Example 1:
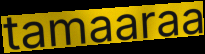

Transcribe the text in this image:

tamaaraa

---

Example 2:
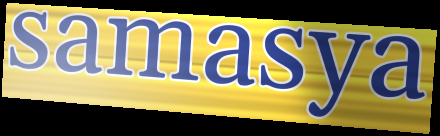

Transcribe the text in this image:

samasya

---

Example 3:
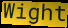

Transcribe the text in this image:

Wight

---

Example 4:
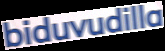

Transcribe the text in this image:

biduvudilla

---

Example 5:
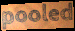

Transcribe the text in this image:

pooled